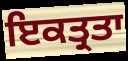
ਇਕਤ੍ਰਤਾ